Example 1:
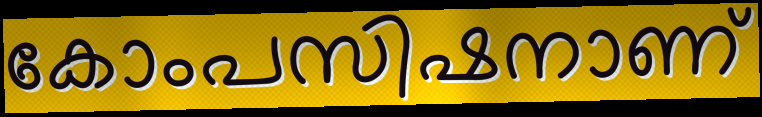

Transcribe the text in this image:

കോംപസിഷനാണ്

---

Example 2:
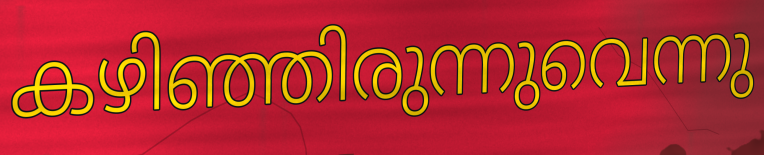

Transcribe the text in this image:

കഴിഞ്ഞിരുന്നുവെന്നു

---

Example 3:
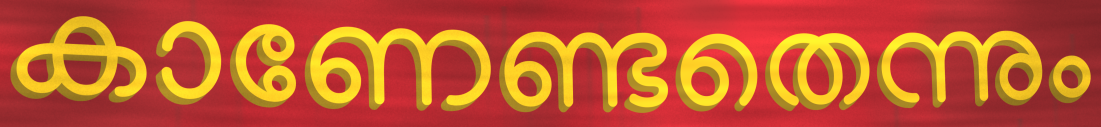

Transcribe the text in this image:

കാണേണ്ടതെന്നും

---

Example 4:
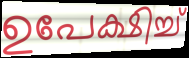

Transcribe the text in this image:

ഉപേക്ഷിച്ച്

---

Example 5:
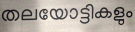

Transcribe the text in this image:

തലയോട്ടികളും